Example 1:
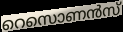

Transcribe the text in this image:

റെസൊണൻസ്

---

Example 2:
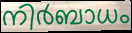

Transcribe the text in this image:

നിർബാധം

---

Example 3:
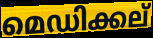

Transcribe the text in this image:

മെഡിക്കല്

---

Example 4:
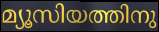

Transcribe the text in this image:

മ്യൂസിയത്തിനു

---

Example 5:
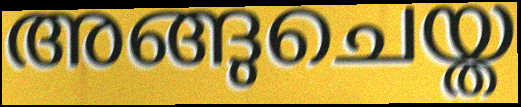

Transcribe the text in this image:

അങ്ങുചെയ്ത